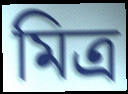
মিত্র